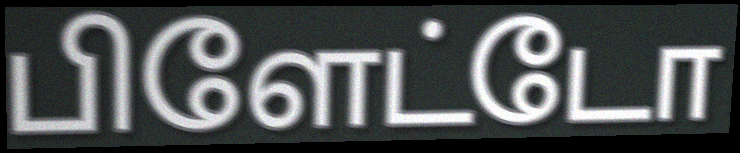
பிளேட்டோ